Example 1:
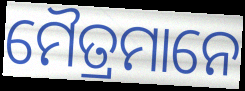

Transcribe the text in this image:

ମୈତ୍ରମାନେ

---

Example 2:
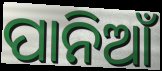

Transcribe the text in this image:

ପାନିଆଁ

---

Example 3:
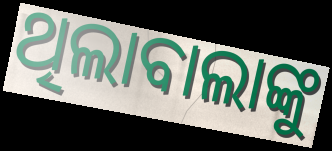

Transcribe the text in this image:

ଥିଲାବାଲାଙ୍କୁ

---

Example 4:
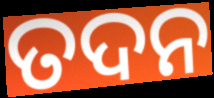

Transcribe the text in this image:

ତଦନ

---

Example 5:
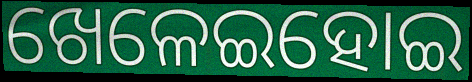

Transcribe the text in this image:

ଖେଳେଇହୋଇ